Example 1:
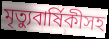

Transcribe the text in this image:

মৃত্যুবার্ষিকীসহ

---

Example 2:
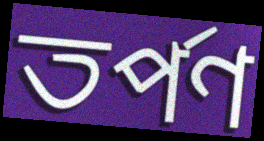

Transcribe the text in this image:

তর্পণ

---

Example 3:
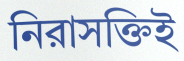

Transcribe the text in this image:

নিরাসক্তিই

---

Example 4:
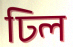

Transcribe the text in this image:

ঢিল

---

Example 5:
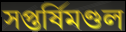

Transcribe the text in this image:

সপ্তর্ষিমণ্ডল